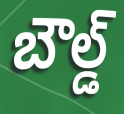
బౌల్డ్